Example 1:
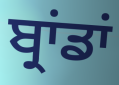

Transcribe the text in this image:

ਬ੍ਰਾਂਡਾਂ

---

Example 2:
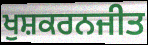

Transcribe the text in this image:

ਖੁਸ਼ਕਰਨਜੀਤ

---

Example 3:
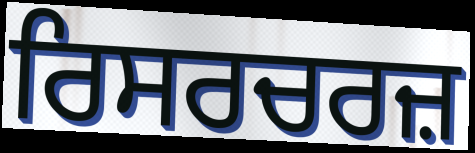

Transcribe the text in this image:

ਰਿਸਰਚਰਜ਼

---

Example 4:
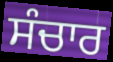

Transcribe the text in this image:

ਸੰਚਾਰ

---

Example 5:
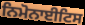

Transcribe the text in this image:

ਨਿਮੋਨਾਈਟਿਸ